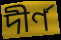
দীর্ণ